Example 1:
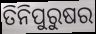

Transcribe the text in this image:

ତିନିପୁରୁଷର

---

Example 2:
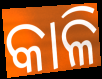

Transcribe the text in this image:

କାଳି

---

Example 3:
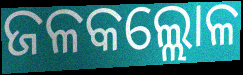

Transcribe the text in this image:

ଜଳକଲ୍ଲୋଳ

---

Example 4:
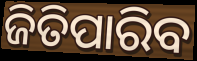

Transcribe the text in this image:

ଜିତିପାରିବ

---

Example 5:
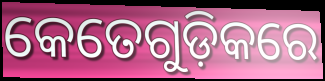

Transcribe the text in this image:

କେତେଗୁଡ଼ିକରେ